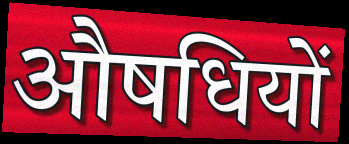
औषधियों